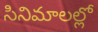
సినిమాలల్లో